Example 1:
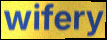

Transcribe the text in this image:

wifery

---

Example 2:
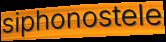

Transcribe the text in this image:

siphonostele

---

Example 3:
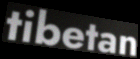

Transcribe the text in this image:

tibetan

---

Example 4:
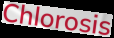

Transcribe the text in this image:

Chlorosis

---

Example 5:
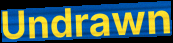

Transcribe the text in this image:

Undrawn